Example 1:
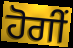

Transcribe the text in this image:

ਹੋਗੀਂ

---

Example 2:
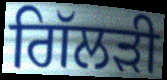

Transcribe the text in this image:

ਗਿੱਲੜੀ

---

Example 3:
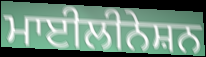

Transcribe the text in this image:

ਮਾਈਲੀਨੇਸ਼ਨ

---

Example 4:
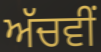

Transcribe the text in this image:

ਅੱਚਵੀਂ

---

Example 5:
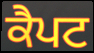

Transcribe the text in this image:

ਕੈਪਟ